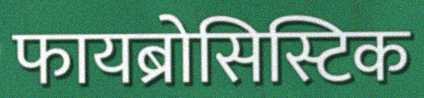
फायब्रोसिस्टिक